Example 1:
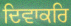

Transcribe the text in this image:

ਦਿਵਾਕਰਿ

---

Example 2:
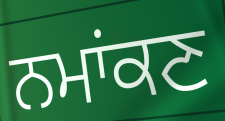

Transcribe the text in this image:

ਨਮਾਂਕਣ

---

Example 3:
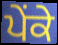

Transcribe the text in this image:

ਪੇਂਕੇ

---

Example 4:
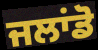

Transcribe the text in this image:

ਜਲਾਂਡੋ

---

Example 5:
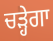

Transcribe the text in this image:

ਚੜ੍ਹੇਗਾ